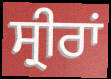
ਸ੍ਰੀਰਾਂ